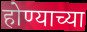
होण्याच्या